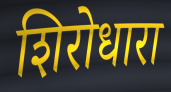
शिरोधारा